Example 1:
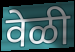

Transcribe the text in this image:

वेळी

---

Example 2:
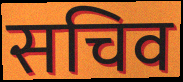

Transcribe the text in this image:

सचिव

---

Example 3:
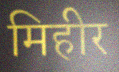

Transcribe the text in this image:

मिहीर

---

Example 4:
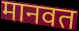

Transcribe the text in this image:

मानवत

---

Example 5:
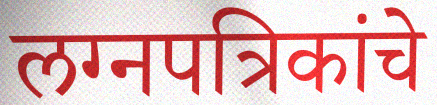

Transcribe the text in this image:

लग्नपत्रिकांचे